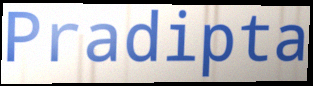
Pradipta